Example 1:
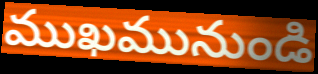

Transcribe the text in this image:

ముఖమునుండి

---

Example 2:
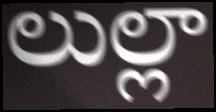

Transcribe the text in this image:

లుల్లా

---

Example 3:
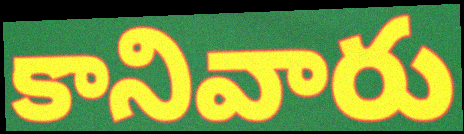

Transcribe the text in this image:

కానివారు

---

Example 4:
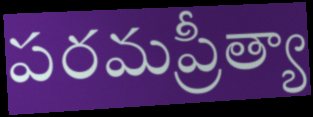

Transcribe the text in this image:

పరమప్రీత్యా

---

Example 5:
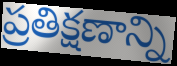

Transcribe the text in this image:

ప్రతిక్షణాన్ని